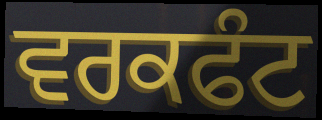
ਵਰਕਫੰਟ